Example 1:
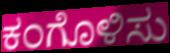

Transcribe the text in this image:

ಕಂಗೊಳಿಸು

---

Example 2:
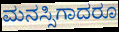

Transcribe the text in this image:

ಮನಸ್ಸಿಗಾದರೂ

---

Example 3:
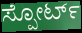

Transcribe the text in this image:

ಸ್ಪೋರ್ಟ್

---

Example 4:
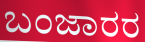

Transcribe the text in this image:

ಬಂಜಾರರ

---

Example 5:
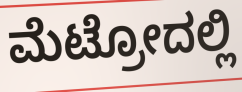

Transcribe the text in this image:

ಮೆಟ್ರೋದಲ್ಲಿ